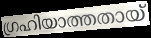
ഗ്രഹിയാത്തതായ്